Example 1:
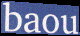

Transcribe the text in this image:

baou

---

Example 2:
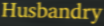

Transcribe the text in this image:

Husbandry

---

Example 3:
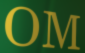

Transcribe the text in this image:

OM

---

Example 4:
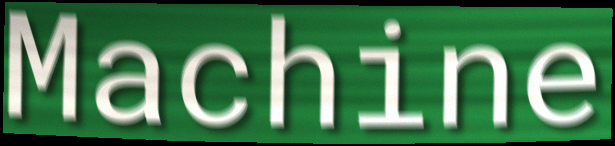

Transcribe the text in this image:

Machine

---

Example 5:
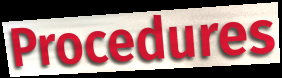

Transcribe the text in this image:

Procedures